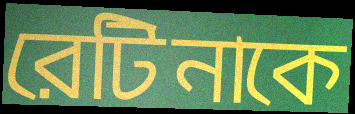
রেটিনাকে